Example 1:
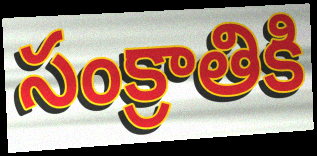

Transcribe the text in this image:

సంక్రాతికి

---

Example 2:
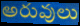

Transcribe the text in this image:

అరువులు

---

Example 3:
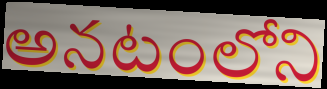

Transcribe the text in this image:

అనటంలోని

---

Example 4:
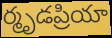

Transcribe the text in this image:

ర్మృడప్రియా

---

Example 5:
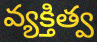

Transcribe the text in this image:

వ్యక్తిత్వ